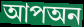
আপঅন